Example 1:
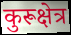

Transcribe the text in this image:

कुरूक्षेत्र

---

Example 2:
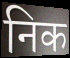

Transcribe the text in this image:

निक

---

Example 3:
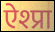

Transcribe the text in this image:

ऐश्प्रा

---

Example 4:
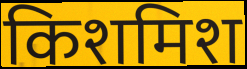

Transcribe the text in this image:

किशमिश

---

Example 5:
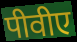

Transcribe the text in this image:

पीवीए